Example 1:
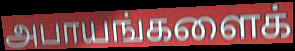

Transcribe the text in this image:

அபாயங்களைக்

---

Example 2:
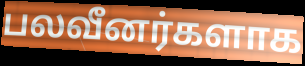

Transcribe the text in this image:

பலவீனர்களாக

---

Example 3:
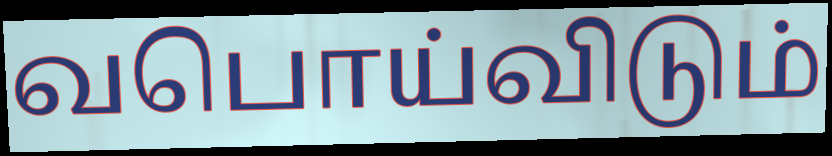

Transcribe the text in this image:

வபொய்விடும்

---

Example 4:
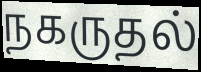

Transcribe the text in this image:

நகருதல்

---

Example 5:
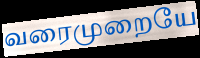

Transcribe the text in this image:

வரைமுறையே